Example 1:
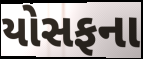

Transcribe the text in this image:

યોસફના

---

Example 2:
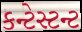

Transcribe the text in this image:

કન્ટેસ્ટન્ટ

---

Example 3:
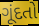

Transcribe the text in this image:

ગૂંદતો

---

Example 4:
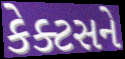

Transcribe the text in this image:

કેક્ટસને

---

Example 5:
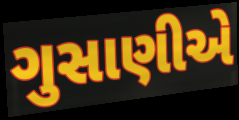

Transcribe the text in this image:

ગુસાણીએ